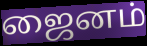
ஜைனம்